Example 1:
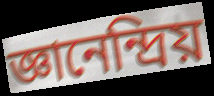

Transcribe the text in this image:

জ্ঞানেন্দ্ৰিয়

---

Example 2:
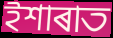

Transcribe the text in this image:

ইশাৰাত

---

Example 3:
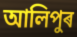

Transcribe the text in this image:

আলিপুৰ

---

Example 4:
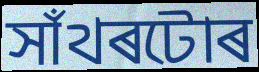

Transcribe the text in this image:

সাঁথৰটোৰ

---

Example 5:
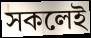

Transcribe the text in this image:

সকলেই